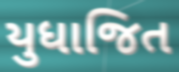
યુધાજિત